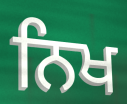
ਨਿਖ